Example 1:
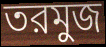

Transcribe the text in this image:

তরমুজ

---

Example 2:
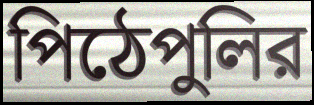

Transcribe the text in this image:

পিঠেপুলির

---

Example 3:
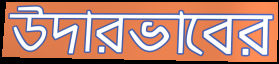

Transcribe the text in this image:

উদারভাবের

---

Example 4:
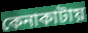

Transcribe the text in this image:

কেনাকাটায়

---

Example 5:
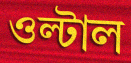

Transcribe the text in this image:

ওল্টাল